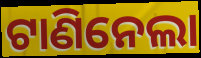
ଟାଣିନେଲା